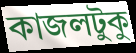
কাজলটুকু